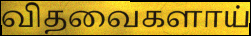
விதவைகளாய்